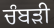
ਚੰਬੜੀ